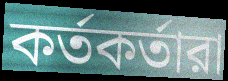
কর্তকর্তারা